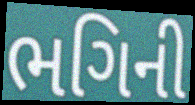
ભગિની